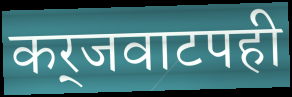
कर्जवाटपही